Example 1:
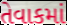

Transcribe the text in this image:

તેવાકમાં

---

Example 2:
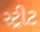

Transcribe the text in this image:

સ્ટ્રીટ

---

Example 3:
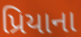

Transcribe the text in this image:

પ્રિયાના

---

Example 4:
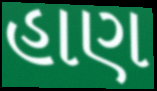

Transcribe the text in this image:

હાણ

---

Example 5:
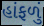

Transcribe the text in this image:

હાંફળું